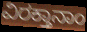
ವಿರಕ್ತಾನಾಂ